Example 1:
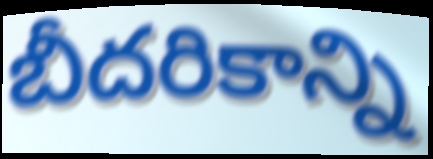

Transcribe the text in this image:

బీదరికాన్ని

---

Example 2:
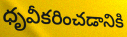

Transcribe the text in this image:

ధృవీకరించడానికి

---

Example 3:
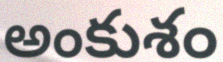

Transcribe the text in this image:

అంకుశం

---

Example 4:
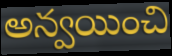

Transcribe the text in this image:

అన్వయించి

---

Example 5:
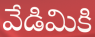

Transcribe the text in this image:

వేడిమికి